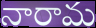
నారామ